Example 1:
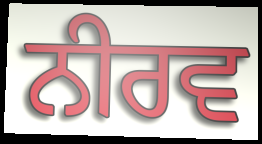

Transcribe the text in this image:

ਨੀਰਵ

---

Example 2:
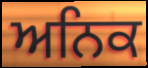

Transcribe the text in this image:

ਅਨਿਕ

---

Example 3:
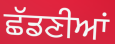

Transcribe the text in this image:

ਛੱਡਣੀਆਂ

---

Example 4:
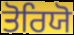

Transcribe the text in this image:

ਤੋਰਿਯੋ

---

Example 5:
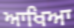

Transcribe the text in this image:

ਆਖਿਆ